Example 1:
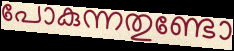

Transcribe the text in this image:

പോകുന്നതുണ്ടോ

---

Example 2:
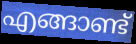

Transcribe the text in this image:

എങ്ങാണ്ട്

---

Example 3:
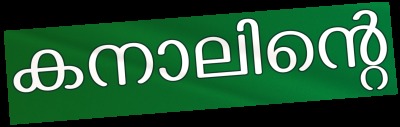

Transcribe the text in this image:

കനാലിന്റെ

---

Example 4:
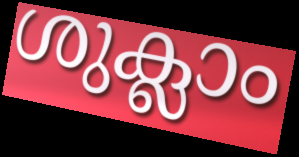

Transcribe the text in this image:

ശുക്ലാം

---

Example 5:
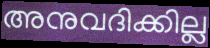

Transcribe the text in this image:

അനുവദിക്കില്ല